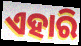
ଏହାରି